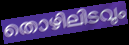
തൊഴിലിടവും